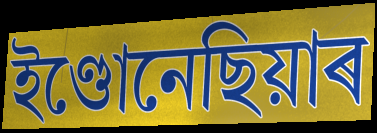
ইণ্ডোনেছিয়াৰ